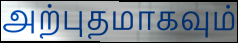
அற்புதமாகவும்